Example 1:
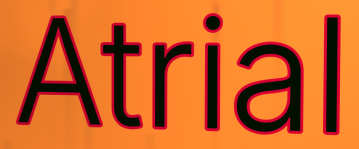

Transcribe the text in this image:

Atrial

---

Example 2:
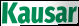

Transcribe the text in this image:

Kausar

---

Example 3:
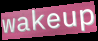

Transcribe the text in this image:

wakeup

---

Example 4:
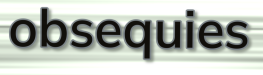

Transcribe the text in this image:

obsequies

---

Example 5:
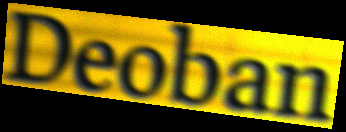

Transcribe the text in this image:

Deoban